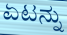
ಏಟನ್ನು